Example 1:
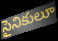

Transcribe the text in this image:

సైనికులూ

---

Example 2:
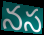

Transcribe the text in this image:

నస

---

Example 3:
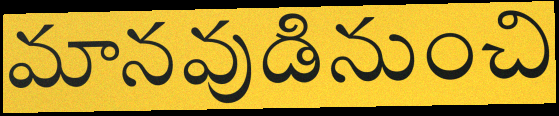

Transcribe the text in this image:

మానవుడినుంచి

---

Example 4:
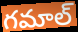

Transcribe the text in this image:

గమాల్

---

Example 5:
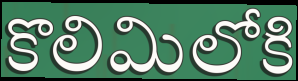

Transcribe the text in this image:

కొలిమిలోకి